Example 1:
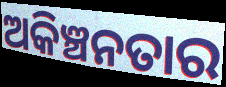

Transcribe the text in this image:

ଅକିଞ୍ଚନତାର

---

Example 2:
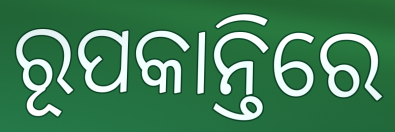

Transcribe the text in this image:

ରୂପକାନ୍ତିରେ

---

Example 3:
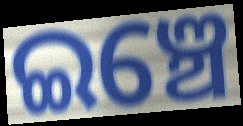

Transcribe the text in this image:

ଇଞ୍ଚେ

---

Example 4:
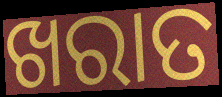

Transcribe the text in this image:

ଖରାତ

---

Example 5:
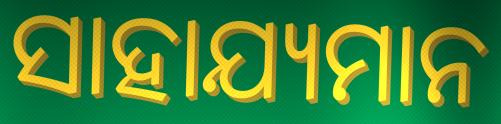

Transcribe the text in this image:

ସାହାଯ୍ୟମାନ